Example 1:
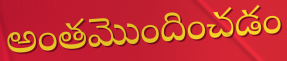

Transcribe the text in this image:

అంతమొందించడం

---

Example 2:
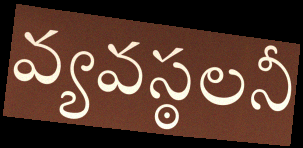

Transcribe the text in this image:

వ్యవస్ఠలనీ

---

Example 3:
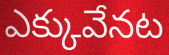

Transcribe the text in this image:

ఎక్కువేనట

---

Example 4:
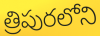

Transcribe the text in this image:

త్రిపురలోని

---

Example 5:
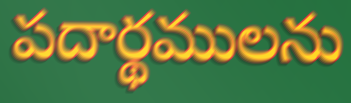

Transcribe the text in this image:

పదార్థములను